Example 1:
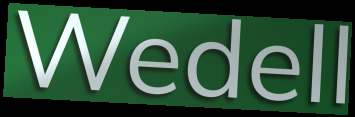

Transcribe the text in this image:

Wedell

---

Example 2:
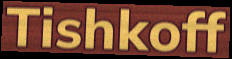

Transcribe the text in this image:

Tishkoff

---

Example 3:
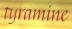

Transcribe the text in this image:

tyramine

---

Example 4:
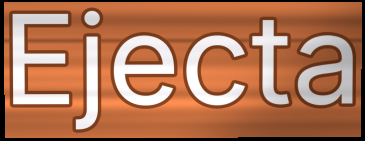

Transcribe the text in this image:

Ejecta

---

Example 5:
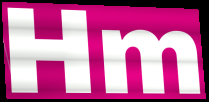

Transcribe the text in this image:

Hm